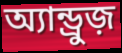
অ্যান্ড্রুজ়